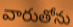
వారుతోను